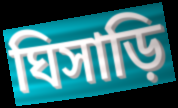
ঘিসাড়ি